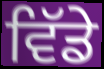
ਵਿੱਡੇ